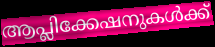
ആപ്ലിക്കേഷനുകൾക്ക്